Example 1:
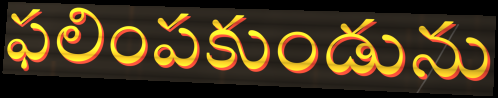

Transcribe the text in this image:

ఫలింపకుండును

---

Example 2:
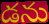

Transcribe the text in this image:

డను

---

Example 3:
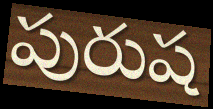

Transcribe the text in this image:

పురుష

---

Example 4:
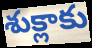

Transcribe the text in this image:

శుక్లాకు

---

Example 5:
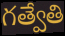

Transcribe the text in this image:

గత్వేతి